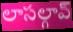
లాసల్గావ్